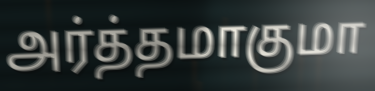
அர்த்தமாகுமா